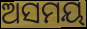
ଅସମୟ